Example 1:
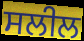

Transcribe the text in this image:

ਸਲੀਲ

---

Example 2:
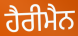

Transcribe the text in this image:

ਹੈਰੀਮੈਨ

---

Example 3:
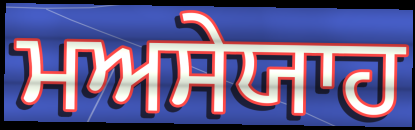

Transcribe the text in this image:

ਮਅਸੇਯਾਹ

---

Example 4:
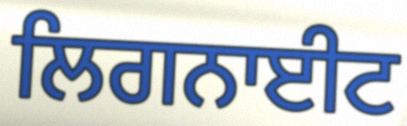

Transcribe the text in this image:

ਲਿਗਨਾਈਟ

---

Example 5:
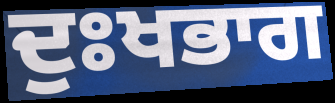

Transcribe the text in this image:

ਦੁਃਖਭਾਗ